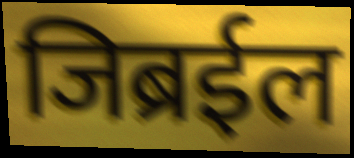
जिब्रईल